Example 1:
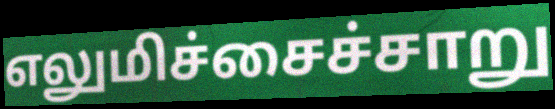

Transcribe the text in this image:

எலுமிச்சைச்சாறு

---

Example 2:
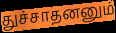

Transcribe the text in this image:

துச்சாதனனும்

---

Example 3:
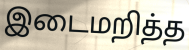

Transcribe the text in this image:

இடைமறித்த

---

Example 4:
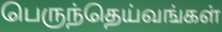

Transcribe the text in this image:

பெருந்தெய்வங்கள்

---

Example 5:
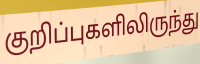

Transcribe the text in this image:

குறிப்புகளிலிருந்து